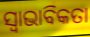
ସ୍ବାଭାବିକତା